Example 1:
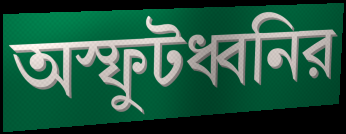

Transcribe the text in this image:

অস্ফুটধ্বনির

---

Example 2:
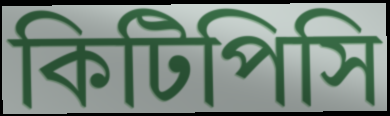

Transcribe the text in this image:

কিটিপিসি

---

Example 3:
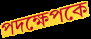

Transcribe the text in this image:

পদক্ষেপকে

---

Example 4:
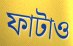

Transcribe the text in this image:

ফাটাও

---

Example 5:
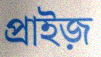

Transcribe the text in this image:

প্রাইজ়